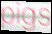
pigs